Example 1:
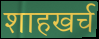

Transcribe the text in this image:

शाहखर्च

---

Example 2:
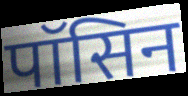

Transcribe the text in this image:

पॉसिन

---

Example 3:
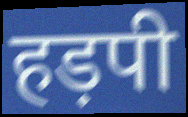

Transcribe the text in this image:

हड़पी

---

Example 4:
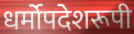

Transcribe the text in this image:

धर्मोपदेशरूपी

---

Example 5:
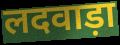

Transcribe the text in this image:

लदवाड़ा